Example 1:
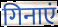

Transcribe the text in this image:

गिनाएं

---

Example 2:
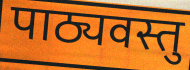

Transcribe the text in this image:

पाठ्यवस्तु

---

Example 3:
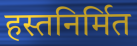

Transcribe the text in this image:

हस्तनिर्मित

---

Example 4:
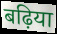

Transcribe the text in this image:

बढ़िया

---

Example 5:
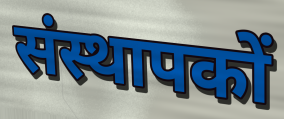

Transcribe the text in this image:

संस्थापकों